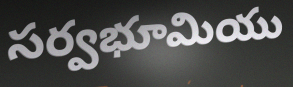
సర్వభూమియు